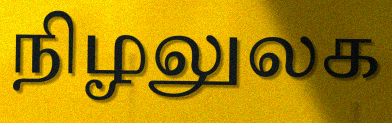
நிழலுலக